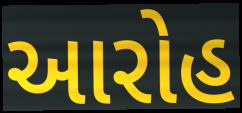
આરોહ